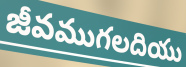
జీవముగలదియు